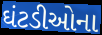
ઘંટડીઓના